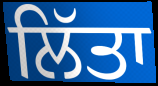
ਲਿੱਤਾ